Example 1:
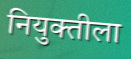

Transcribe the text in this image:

नियुक्तीला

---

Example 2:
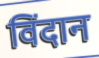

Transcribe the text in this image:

विंदान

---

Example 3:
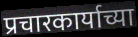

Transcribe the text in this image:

प्रचारकार्याच्या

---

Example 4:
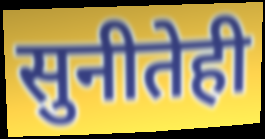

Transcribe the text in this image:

सुनीतेही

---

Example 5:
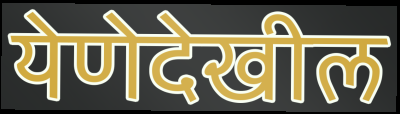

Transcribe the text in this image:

येणेदेखील